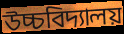
উচ্চবিদ্যালয়